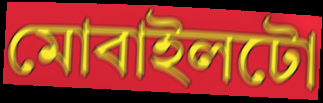
মোবাইলটো